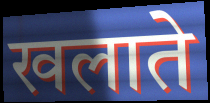
खलाते